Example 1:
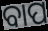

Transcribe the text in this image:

ବାପ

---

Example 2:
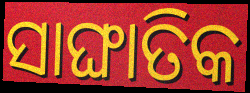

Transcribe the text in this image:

ସାଙ୍ଘାତିକ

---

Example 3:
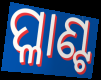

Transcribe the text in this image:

ପ୍ଳାଣ୍ଟ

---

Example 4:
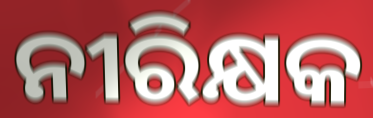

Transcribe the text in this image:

ନୀରିକ୍ଷକ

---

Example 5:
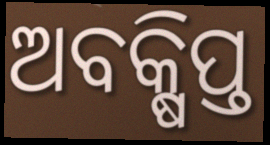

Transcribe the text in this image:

ଅବକ୍ଷିପ୍ତ